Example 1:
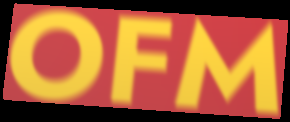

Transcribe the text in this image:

OFM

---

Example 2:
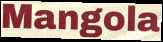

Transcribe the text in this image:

Mangola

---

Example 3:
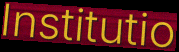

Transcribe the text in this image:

Institutio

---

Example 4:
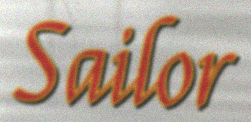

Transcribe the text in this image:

Sailor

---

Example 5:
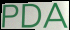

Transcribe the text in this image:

PDA